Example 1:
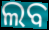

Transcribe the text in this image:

ଲବ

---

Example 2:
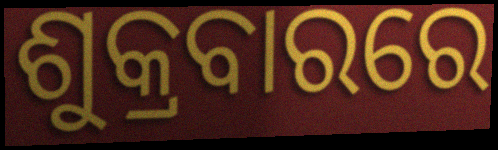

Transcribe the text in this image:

ଶୁକ୍ରବାରରେ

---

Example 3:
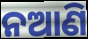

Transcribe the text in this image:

ନଆଣି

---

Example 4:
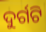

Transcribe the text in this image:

ଦୁର୍ଗଟି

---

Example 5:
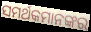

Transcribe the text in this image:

ସମର୍ଥକମାନଙ୍କର